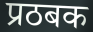
प्रठबक